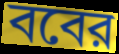
ববের